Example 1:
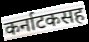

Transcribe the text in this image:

कर्नाटकसह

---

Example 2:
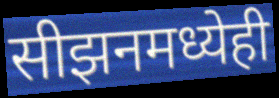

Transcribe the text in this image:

सीझनमध्येही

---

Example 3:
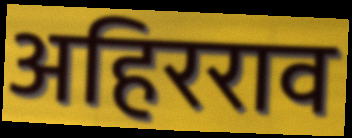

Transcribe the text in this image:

अहिरराव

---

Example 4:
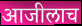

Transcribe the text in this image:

आजीलाच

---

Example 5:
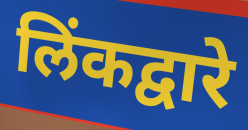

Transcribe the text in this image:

लिंकद्वारे